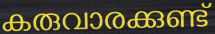
കരുവാരക്കുണ്ട്